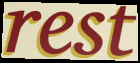
rest